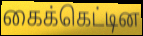
கைக்கெட்டின